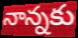
నాన్నకు